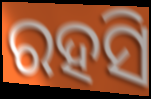
ରହସି